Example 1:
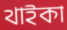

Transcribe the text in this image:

থাইকা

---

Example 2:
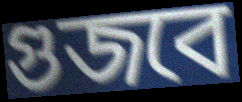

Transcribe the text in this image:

গুজবে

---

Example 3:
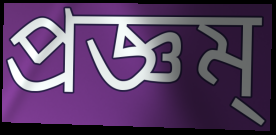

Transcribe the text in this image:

প্রজ্ঞম্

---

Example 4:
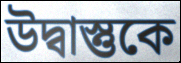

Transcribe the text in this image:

উদ্বাস্তুকে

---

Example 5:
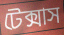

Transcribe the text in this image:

টেক্সাস